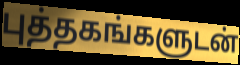
புத்தகங்களுடன்